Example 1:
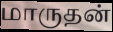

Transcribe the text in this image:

மாருதன்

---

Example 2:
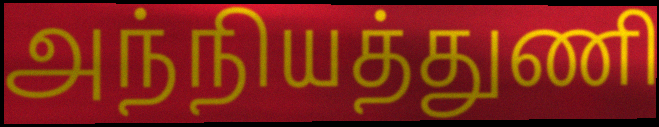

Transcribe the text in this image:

அந்நியத்துணி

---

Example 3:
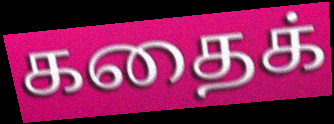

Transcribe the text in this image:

கதைக்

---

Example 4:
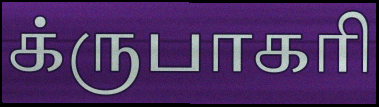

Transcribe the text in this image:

க்ருபாகரி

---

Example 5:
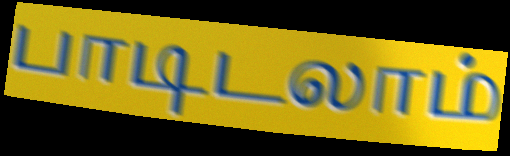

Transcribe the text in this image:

பாடிடலாம்